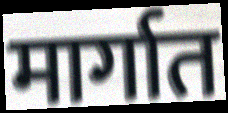
मार्गात